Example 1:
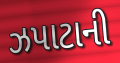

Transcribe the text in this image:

ઝપાટાની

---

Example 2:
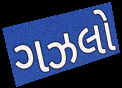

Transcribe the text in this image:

ગઝલો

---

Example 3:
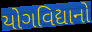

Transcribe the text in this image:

યોગવિદ્યાનો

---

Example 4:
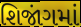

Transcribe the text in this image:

શિજાંગમાં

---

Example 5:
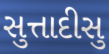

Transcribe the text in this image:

સુત્તાદીસુ